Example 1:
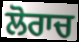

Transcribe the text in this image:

ਲੋਰਾਚ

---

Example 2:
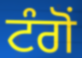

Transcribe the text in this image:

ਟੰਗੋਂ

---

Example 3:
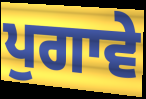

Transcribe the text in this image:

ਪੁਗਾਵੇ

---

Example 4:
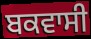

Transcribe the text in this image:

ਬਕਵਾਸੀ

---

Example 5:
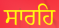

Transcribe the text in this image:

ਸਾਰਹਿ